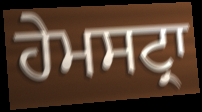
ਹੇਮਸਟ੍ਰਾ